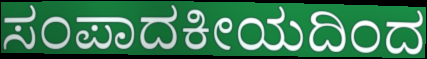
ಸಂಪಾದಕೀಯದಿಂದ